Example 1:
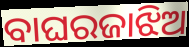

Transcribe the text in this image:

ବାଘରଜାଝିଅ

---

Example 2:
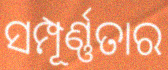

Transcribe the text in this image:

ସମ୍ପୂର୍ଣ୍ଣତାର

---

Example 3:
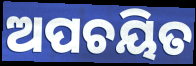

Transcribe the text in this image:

ଅପଚୟିତ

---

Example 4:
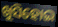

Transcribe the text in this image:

ଖୁସିହୋଇ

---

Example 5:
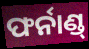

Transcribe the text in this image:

ଫର୍ନାଣ୍ଡ୍